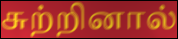
சுற்றினால்